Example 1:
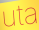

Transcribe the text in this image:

uta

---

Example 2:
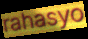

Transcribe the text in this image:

rahasyo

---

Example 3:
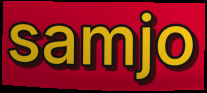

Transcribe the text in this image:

samjo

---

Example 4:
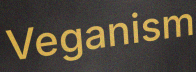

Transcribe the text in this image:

Veganism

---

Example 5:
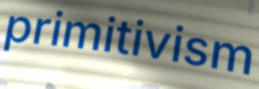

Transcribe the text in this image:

primitivism